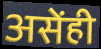
असेंही